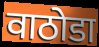
वाठोडा